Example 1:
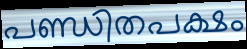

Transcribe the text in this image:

പണ്ഡിതപക്ഷം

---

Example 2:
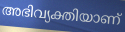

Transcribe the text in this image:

അഭിവ്യക്തിയാണ്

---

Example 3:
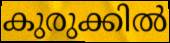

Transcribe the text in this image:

കുരുക്കിൽ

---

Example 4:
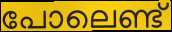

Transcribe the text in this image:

പോലെണ്ട്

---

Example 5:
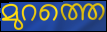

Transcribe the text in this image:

മുറത്തെ